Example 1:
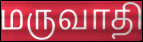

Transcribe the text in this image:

மருவாதி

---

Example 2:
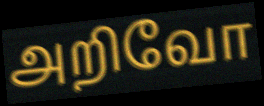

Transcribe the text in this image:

அறிவோ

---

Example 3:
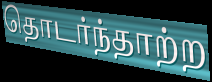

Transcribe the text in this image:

தொடர்ந்தாற்ற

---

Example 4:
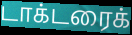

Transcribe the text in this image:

டாக்டரைக்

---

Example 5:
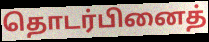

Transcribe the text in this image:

தொடர்பினைத்